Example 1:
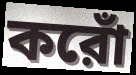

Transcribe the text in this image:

করোঁ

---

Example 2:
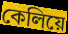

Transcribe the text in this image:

কেলিয়ে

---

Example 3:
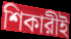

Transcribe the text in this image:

শিকারীই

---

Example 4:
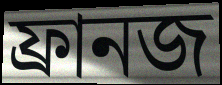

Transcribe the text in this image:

ফ্রানজ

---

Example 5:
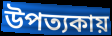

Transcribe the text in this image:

উপত্যকায়